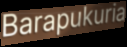
Barapukuria